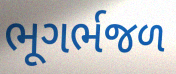
ભૂગર્ભજળ